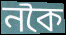
নকৈ